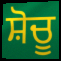
ਸ਼ੋਚੂ